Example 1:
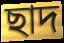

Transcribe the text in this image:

ছাদ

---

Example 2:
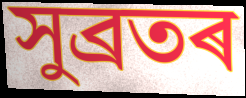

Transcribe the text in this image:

সুব্ৰতৰ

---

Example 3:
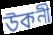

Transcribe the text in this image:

উকনী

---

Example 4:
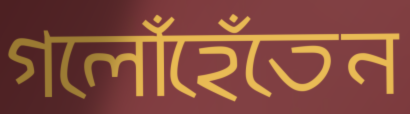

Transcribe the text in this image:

গলোঁহেঁতেন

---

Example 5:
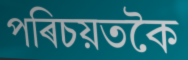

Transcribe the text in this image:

পৰিচয়তকৈ